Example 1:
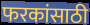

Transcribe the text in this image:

फरकांसाठी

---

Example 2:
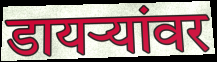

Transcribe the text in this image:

डायऱ्यांवर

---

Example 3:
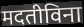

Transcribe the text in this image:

मदतीविना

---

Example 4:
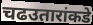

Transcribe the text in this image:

चढउतारांकडे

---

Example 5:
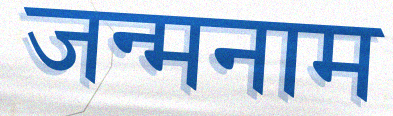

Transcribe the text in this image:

जन्मनाम